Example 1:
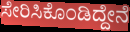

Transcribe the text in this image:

ಸೇರಿಸಿಕೊಂಡಿದ್ದೇನೆ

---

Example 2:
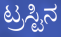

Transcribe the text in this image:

ಟ್ರಸ್ಟಿನ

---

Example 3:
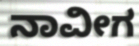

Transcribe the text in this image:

ನಾವೀಗ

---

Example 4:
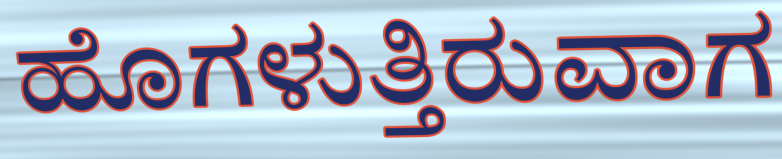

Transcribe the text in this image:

ಹೊಗಳುತ್ತಿರುವಾಗ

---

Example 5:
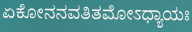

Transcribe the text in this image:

ಏಕೋನನವತಿತಮೋಽಧ್ಯಾಯಃ